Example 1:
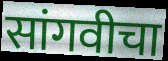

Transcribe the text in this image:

सांगवीचा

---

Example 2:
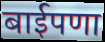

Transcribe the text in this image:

बाईपणा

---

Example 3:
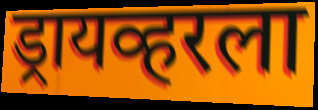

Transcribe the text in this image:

ड्रायव्हरला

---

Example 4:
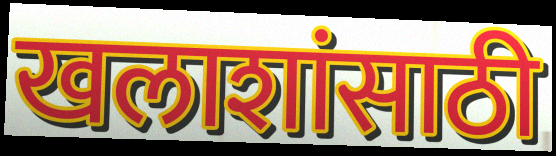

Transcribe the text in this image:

खलाशांसाठी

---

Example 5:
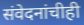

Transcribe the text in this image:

संवेदनांचीही